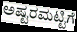
ಅಷ್ಟರಮಟ್ಟಿಗೆ